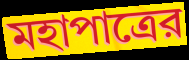
মহাপাত্রের